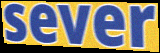
sever